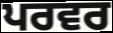
ਪਰਵਰ